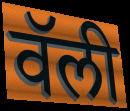
वॅली